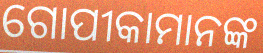
ଗୋପୀକାମାନଙ୍କ